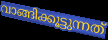
വാങ്ങിക്കൂട്ടുന്നത്